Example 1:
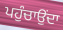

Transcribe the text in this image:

ਪਹੁੰਚਾਉਂਦਾ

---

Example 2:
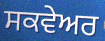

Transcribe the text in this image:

ਸਕਵੇਅਰ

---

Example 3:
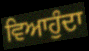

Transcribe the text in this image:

ਵਿਆਹੁੰਦਾ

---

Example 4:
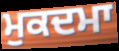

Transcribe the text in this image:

ਮੁਕਦਮਾ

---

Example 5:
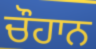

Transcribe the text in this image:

ਚੌਹਾਨ